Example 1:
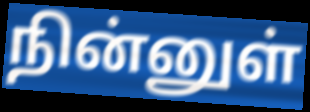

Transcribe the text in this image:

நின்னுள்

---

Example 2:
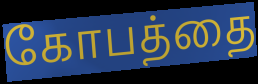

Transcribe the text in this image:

கோபத்தை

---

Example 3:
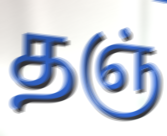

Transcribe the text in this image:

தஞ்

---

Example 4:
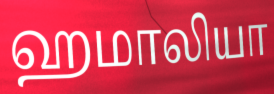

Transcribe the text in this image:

ஹமாலியா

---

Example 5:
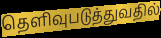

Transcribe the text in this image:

தெளிவுபடுத்துவதில்